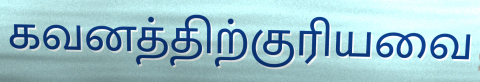
கவனத்திற்குரியவை